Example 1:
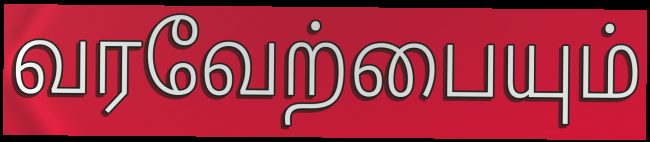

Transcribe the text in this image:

வரவேற்பையும்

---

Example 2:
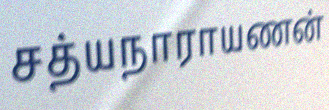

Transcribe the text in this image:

சத்யநாராயணன்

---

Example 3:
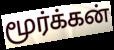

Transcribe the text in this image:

மூர்க்கன்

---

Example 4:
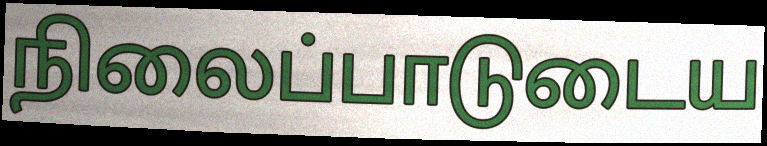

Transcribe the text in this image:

நிலைப்பாடுடைய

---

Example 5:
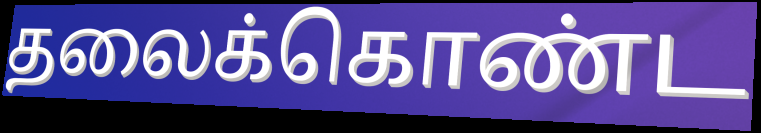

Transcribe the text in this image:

தலைக்கொண்ட